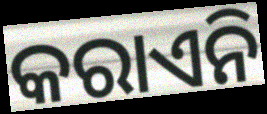
କରାଏନି